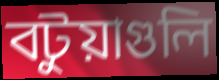
বটুয়াগুলি